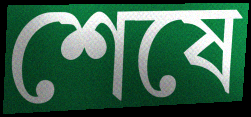
শেষে